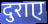
दुराए